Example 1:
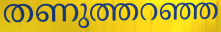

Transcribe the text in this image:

തണുത്തറഞ്ഞ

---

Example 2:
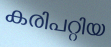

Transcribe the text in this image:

കരിപറ്റിയ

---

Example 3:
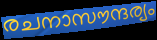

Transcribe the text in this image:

രചനാസൗന്ദര്യം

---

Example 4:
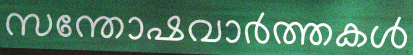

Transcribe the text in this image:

സന്തോഷവാർത്തകൾ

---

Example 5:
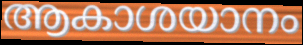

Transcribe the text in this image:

ആകാശയാനം